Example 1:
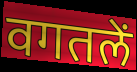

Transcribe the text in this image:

वगतलें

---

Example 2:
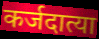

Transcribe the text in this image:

कर्जदात्या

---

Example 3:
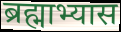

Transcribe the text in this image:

ब्रह्माभ्यास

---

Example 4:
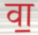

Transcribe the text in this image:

वा॒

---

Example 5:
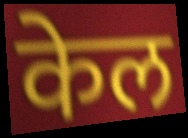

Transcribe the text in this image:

केल